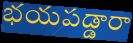
భయపడ్డారా